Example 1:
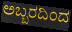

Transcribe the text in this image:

ಅಬ್ಬರದಿಂದ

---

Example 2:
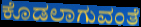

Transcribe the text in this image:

ಕೊಡಲಾಗುವಂತೆ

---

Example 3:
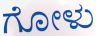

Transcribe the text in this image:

ಗೋಳು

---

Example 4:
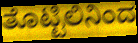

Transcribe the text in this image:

ತೊಟ್ಟಿಲಿನಿಂದ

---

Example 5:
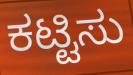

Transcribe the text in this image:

ಕಟ್ಟಿಸು